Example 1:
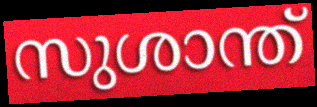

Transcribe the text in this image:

സുശാന്ത്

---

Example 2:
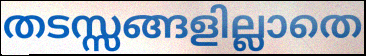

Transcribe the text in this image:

തടസ്സങ്ങളില്ലാതെ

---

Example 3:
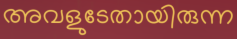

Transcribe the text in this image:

അവളുടേതായിരുന്ന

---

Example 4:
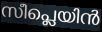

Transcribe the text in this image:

സീപ്ലെയിൻ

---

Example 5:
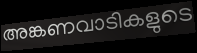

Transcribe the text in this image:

അങ്കണവാടികളുടെ